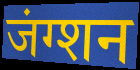
जंग्शन